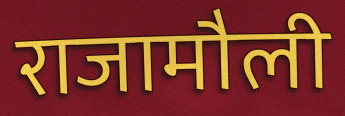
राजामौली